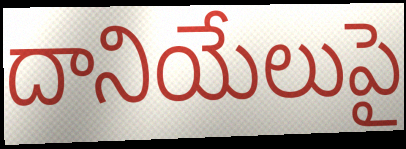
దానియేలుపై